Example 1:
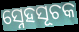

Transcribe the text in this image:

ସ୍ନେହସୂଚକ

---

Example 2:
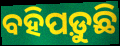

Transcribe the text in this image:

ବହିପଡ଼ୁଛି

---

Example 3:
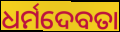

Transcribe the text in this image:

ଧର୍ମଦେବତା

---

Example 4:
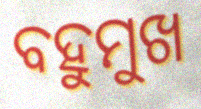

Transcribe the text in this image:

ବହୁମୁଖ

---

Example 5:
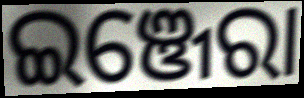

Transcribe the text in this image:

ଇଞ୍ଜେରା